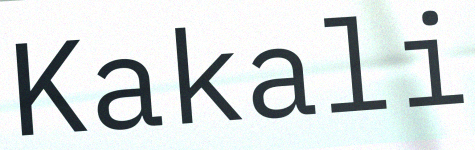
Kakali